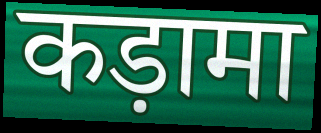
कड़ामा